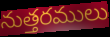
నుత్తరములు